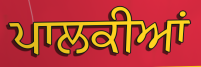
ਪਾਲਕੀਆਂ